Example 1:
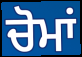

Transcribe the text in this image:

ਚੋਮਾਂ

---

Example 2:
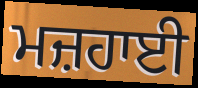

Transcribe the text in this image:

ਮਜ਼ਹਾਈ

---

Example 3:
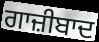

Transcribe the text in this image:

ਗਾਜ਼ੀਬਾਦ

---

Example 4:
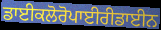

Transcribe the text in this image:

ਡਾਈਕਲੋਰੋਪਾਈਰੀਡਾਈਨ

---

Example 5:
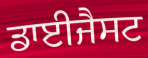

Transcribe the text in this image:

ਡਾਈਜੈਸਟ